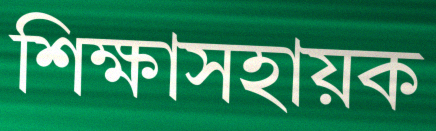
শিক্ষাসহায়ক